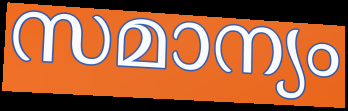
സമാന്യം